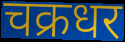
चक्रधर